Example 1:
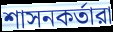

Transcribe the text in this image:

শাসনকর্তারা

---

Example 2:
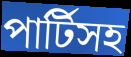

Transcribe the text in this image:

পার্টিসহ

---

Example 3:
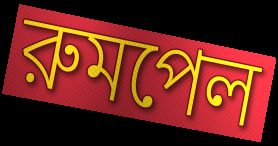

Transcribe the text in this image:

রুমপেল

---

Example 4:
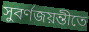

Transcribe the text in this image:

সুবর্ণজয়ন্তীতে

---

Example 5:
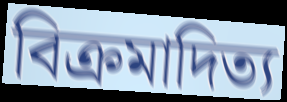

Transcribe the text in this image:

বিক্রমাদিত্য